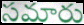
సమారు